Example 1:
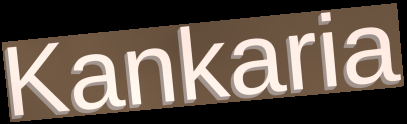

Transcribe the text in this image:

Kankaria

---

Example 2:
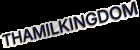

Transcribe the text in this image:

THAMILKINGDOM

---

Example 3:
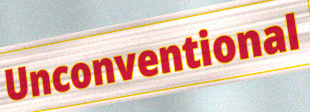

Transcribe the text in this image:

Unconventional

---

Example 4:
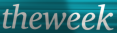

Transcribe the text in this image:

theweek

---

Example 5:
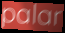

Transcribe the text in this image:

palar